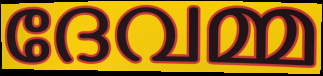
ദേവമ്മ